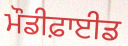
ਮੌਡੀਫ਼ਾਈਡ